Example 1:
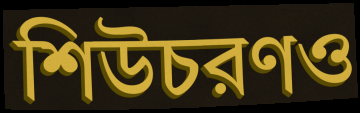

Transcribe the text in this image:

শিউচরণও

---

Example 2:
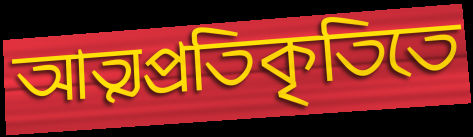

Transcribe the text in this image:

আত্মপ্রতিকৃতিতে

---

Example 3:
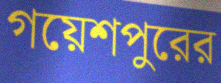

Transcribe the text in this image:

গয়েশপুরের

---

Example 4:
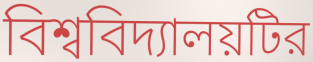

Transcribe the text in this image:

বিশ্ববিদ্যালয়টির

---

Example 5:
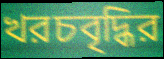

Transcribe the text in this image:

খরচবৃদ্ধির